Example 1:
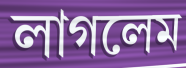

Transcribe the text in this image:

লাগলেম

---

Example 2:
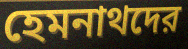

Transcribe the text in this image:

হেমনাথদের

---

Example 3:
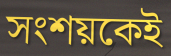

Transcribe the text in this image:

সংশয়কেই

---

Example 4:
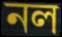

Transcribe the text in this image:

নল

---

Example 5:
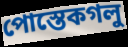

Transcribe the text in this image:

পোস্তেকগলু